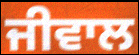
ਜੀਵਾਲ